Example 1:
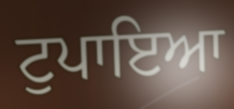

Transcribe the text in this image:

ਟੁਪਾਇਆ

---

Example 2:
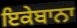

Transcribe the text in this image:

ਇਕੇਬਾਨਾ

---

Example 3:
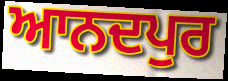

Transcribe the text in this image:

ਆਨਦਪੁਰ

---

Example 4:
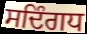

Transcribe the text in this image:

ਸਦਿੰਗਧ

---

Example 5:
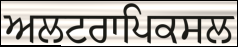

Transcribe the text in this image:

ਅਲਟਰਾਪਿਕਸਲ